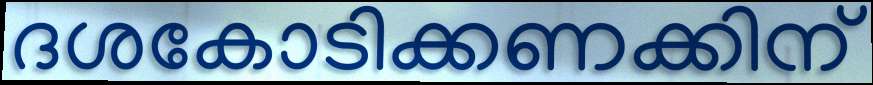
ദശകോടിക്കണക്കിന്